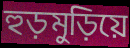
হুড়মুড়িয়ে